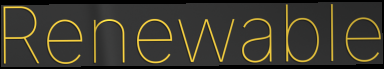
Renewable